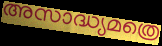
അസാദ്ധ്യമത്രെ